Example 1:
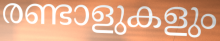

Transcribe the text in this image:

രണ്ടാളുകളും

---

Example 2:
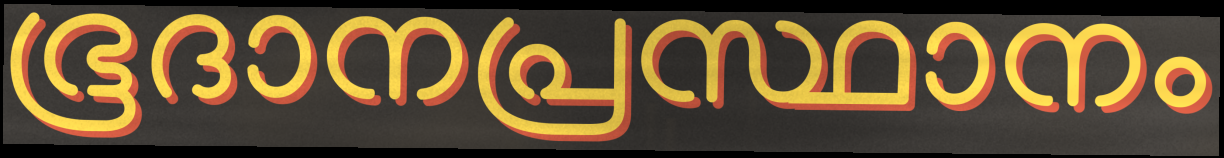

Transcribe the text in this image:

ഭൂദാനപ്രസ്ഥാനം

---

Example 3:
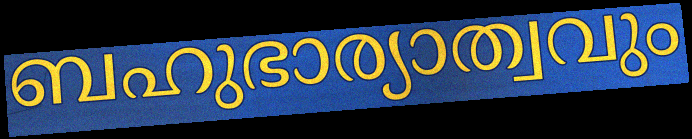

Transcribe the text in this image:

ബഹുഭാര്യാത്വവും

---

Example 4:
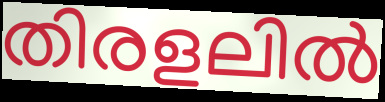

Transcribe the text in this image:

തിരളലിൽ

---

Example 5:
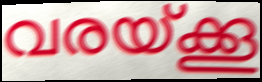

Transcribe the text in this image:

വരയ്ക്കൂ